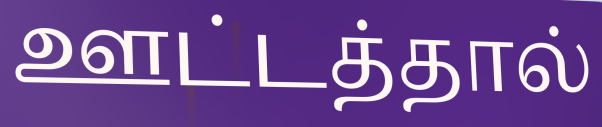
ஊட்டத்தால்